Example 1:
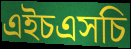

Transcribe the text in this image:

এইচএসচি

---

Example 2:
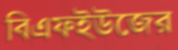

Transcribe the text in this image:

বিএফইউজের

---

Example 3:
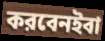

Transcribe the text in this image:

করবেনইবা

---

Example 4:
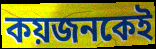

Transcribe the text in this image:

কয়জনকেই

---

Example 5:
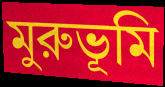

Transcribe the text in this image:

মুরুভূমি